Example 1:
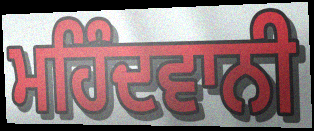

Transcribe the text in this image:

ਮਹਿੰਦਵਾਨੀ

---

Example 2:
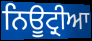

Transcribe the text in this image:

ਨਿਊਟ੍ਰੀਆ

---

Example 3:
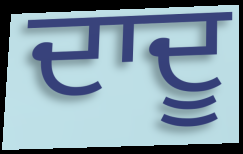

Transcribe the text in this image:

ਦਾਦੂ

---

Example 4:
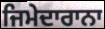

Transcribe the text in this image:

ਜਿਮੇਦਾਰਾਨਾ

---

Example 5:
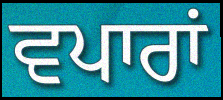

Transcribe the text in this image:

ਵਪਾਰਾਂ